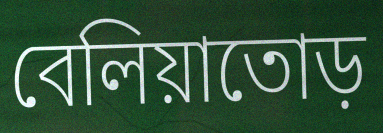
বেলিয়াতোড়